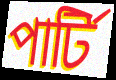
পার্টি